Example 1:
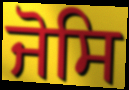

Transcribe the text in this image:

ਜੋਸਿ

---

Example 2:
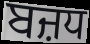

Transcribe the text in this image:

ਬਜ਼ਧ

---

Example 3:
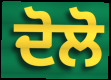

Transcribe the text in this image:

ਦੋਲੋ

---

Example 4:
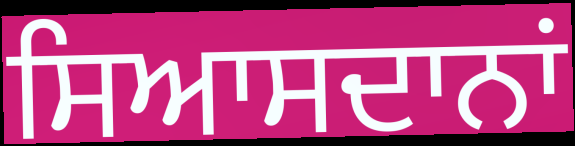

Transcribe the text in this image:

ਸਿਆਸਦਾਨਾਂ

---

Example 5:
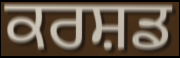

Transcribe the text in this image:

ਕਰਸ਼ਡ